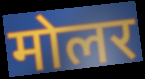
मोलर